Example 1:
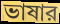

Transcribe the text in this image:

ভাষার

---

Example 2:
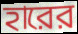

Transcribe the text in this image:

হারের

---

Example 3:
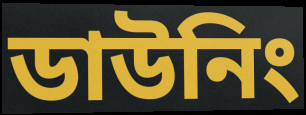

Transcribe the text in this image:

ডাউনিং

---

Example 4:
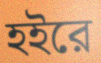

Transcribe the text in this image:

হইরে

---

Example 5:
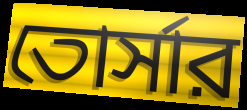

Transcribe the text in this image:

তোর্সার